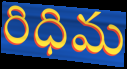
రిధిమ